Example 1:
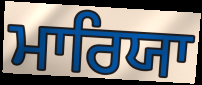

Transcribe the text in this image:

ਮਾਰਿਯਾ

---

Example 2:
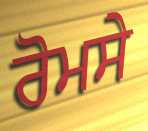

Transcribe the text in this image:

ਰੋਮਸੇ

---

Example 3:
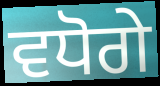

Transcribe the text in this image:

ਵਧੋਗੇ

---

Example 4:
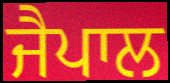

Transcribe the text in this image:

ਜੈਪਾਲ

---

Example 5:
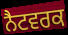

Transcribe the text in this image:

ਨੈਟਵਰਕ